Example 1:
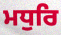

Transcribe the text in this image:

ਮਧੁਰਿ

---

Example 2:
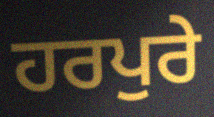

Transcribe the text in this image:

ਹਰਪੁਰੇ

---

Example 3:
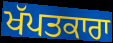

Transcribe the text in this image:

ਖੱਪਤਕਾਰਾ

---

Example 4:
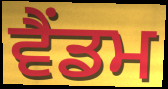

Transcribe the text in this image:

ਵੈਂਡਮ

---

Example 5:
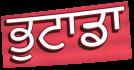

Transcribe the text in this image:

ਭੁਟਾਡਾ